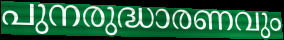
പുനരുദ്ധാരണവും